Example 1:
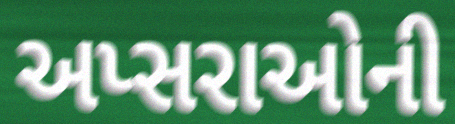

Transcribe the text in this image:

અપ્સરાઓની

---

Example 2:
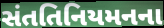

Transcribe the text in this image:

સંતતિનિયમનના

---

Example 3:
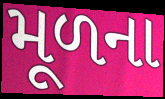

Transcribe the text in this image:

મૂળના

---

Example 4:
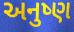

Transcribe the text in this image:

અનુષ્ણ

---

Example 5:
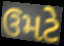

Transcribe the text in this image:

ઉમટે